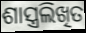
ଶାସ୍ତ୍ରଲିଖିତ